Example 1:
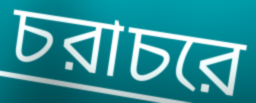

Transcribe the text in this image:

চরাচরে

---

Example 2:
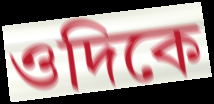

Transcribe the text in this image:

ওদিকে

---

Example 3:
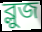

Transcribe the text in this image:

ব্লুজ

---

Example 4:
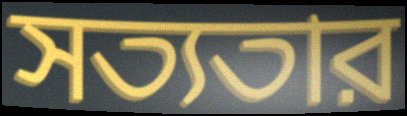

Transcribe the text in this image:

সত্যতার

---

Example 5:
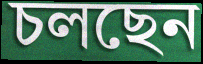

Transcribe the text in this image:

চলছেন